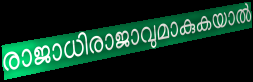
രാജാധിരാജാവുമാകുകയാൽ